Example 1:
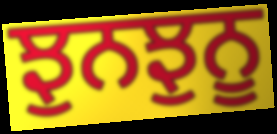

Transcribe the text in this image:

ਝੁਨਝੁਨੂ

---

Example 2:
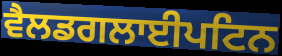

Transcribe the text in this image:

ਵੈਲਡਗਲਾਈਪਟਿਨ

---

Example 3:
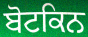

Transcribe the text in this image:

ਬੋਟਕਿਨ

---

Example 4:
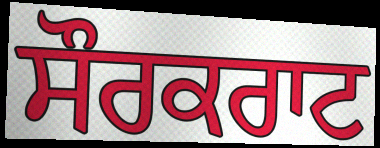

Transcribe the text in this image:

ਸੌਰਕਰਾਟ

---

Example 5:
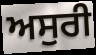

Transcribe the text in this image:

ਅਸੁਰੀ